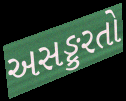
અસઙ્કરતો